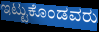
ಇಟ್ಟುಕೊಂಡವರು